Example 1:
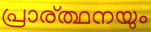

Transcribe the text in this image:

പ്രാര്ത്ഥനയും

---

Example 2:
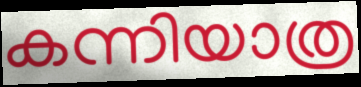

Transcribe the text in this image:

കന്നിയാത്ര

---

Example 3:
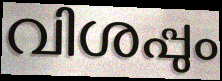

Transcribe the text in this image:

വിശപ്പും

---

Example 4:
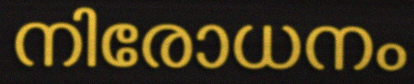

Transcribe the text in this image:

നിരോധനം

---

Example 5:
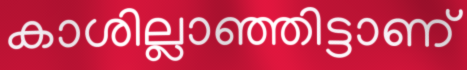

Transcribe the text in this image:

കാശില്ലാഞ്ഞിട്ടാണ്